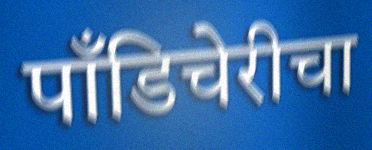
पाँडिचेरीचा